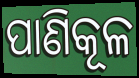
ପାଣିକୂଳ